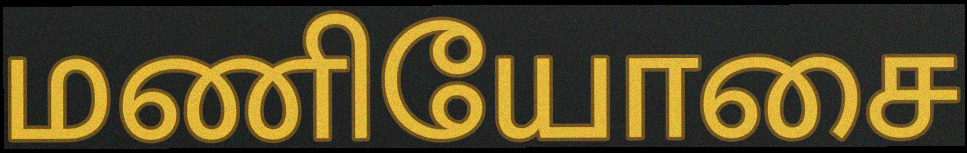
மணியோசை